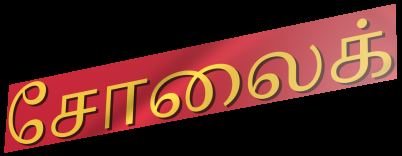
சோலைக்